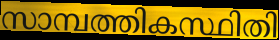
സാമ്പത്തികസ്ഥിതി